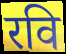
रवि